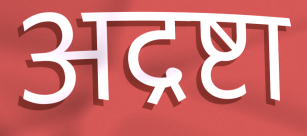
अद्रष्टा